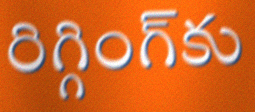
రిగ్గింగ్‌కు